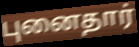
புனைதார்